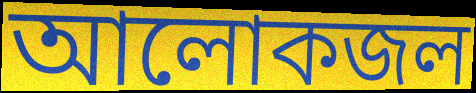
আলোকজল